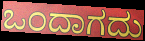
ಒಂದಾಗದು